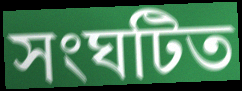
সংঘটিত